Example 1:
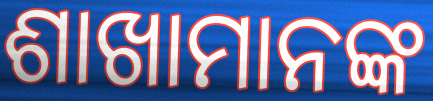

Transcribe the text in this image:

ଶାଖାମାନଙ୍କ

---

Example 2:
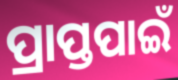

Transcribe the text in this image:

ପ୍ରାପ୍ତପାଇଁ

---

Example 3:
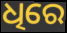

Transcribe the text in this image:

ଧିରେ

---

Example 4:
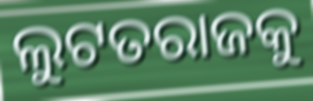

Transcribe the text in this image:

ଲୁଟତରାଜକୁ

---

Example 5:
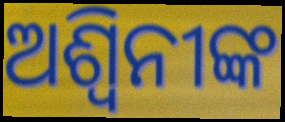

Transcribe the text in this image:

ଅଶ୍ୱିନୀଙ୍କ